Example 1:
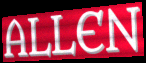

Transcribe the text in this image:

ALLEN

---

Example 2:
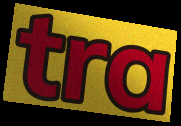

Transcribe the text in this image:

tra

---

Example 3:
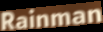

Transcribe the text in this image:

Rainman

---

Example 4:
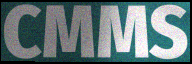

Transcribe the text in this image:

CMMS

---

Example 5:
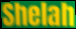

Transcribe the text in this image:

Shelah